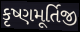
કૃષ્ણમૂર્તિજી